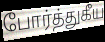
போர்த்துகீய